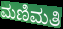
ಮಣಿಮತಿ